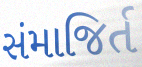
સંમાજિર્ત